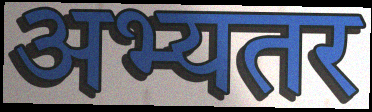
अभ्यतर